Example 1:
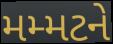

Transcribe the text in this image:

મમ્મટને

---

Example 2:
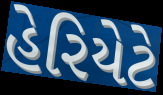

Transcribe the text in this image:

હેરિયેટે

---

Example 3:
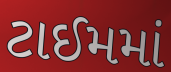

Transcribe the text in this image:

ટાઈમમાં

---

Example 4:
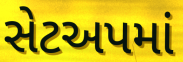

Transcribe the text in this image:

સેટઅપમાં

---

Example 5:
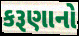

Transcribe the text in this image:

કરૂણાનો